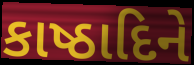
કાષ્ઠાદિને